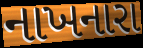
નાખનારા